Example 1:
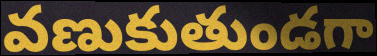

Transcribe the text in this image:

వణుకుతుండగా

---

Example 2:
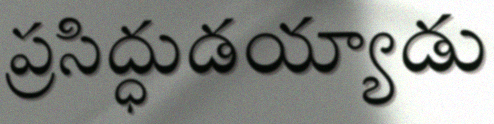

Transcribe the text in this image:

ప్రసిద్ధుడయ్యాడు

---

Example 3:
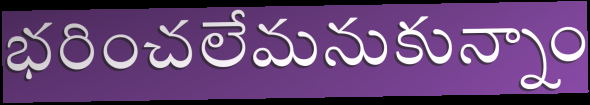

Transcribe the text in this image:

భరించలేమనుకున్నాం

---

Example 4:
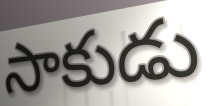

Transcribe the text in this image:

సాకుడు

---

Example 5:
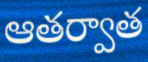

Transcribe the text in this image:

ఆతర్వాత